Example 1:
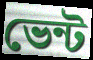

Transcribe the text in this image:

ভেন্ট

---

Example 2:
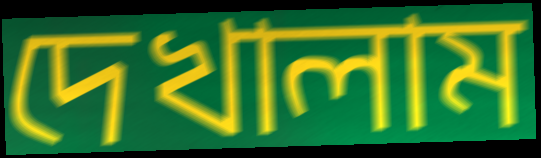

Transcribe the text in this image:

দেখালাম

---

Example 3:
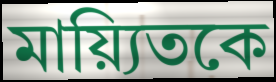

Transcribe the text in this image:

মায়্যিতকে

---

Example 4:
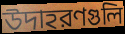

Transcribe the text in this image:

উদাহরণগুলি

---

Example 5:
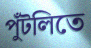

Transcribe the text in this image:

পুঁটলিতে